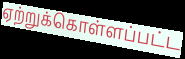
ஏற்றுக்கொள்ளப்பட்ட